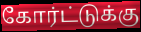
கோர்ட்டுக்கு